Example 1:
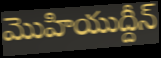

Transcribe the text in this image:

మొహియుద్దీన్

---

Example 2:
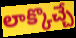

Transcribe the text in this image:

లాక్కొచ్చే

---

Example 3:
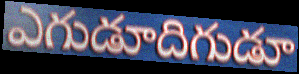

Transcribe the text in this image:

ఎగుడూదిగుడూ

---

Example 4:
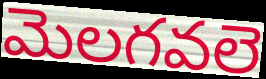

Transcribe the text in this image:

మెలగవలె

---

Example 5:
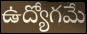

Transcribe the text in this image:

ఉద్యోగమే